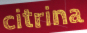
citrina